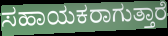
ಸಹಾಯಕರಾಗುತ್ತಾರೆ